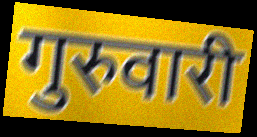
गुरुवारी